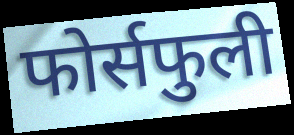
फोर्सफुली